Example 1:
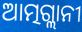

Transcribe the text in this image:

ଆତ୍ମଗ୍ଲାନୀ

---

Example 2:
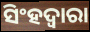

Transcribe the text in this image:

ସିଂହଦ୍ୱାରା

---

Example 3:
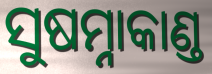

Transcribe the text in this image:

ସୁଷମ୍ନାକାଣ୍ଡ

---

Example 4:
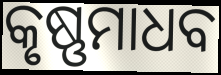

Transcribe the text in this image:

କୃଷ୍ଣମାଧବ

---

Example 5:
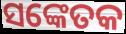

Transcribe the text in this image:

ସଙ୍କେତକ